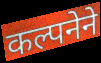
कल्पनेने